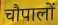
चौपालों